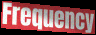
Frequency